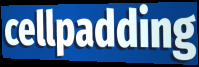
cellpadding